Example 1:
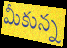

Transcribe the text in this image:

మీకున్న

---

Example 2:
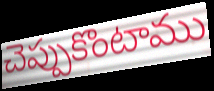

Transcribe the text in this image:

చెప్పుకొంటాము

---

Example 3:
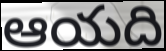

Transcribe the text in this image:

ఆయది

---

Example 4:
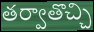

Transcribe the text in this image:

తర్వాతొచ్చి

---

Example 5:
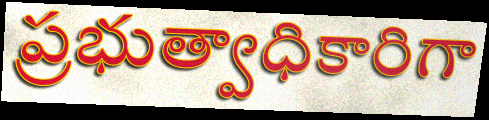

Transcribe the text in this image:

ప్రభుత్వాధికారిగా